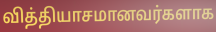
வித்தியாசமானவர்களாக